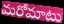
మరోమాటు